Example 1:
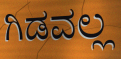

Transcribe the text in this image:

ಗಿಡವಲ್ಲ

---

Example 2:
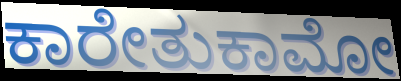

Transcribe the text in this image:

ಕಾರೇತುಕಾಮೋ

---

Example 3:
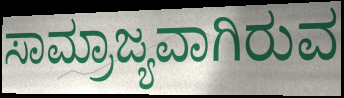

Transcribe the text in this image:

ಸಾಮ್ರಾಜ್ಯವಾಗಿರುವ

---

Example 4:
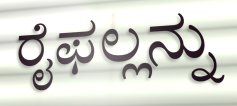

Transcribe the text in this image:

ರೈಫಲ್ಲನ್ನು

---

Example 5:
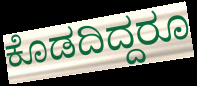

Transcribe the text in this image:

ಕೊಡದಿದ್ದರೂ